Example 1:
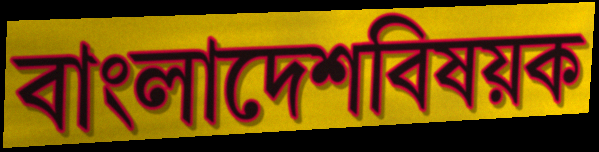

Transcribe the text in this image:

বাংলাদেশবিষয়ক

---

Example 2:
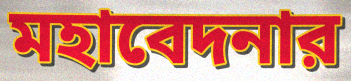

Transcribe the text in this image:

মহাবেদনার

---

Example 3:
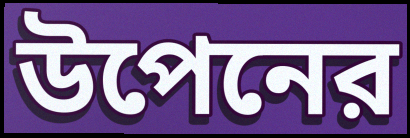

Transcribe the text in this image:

উপেনের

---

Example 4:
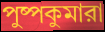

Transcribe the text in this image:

পুষ্পকুমারা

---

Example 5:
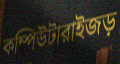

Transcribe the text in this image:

কম্পিউটারাইজড়